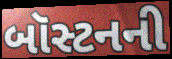
બૉસ્ટનની